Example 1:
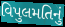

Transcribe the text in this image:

વિપુલમતિનું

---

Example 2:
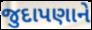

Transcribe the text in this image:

જુદાપણાને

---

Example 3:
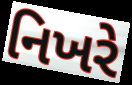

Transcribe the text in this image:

નિખરે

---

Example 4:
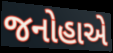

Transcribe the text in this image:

જનોહાએ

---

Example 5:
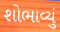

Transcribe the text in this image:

શોભાવ્યું